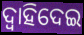
ଦ୍ୱାହିଦେଇ